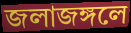
জলাজঙ্গলে